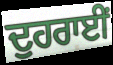
ਦੁਹਰਾਈਂ